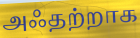
அஃதற்றாக